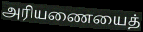
அரியணையைத்